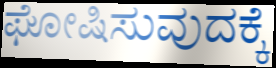
ಘೋಷಿಸುವುದಕ್ಕೆ